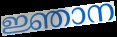
ജ്ഞാന